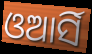
ଓଆର୍ସି